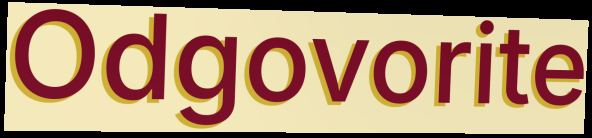
Odgovorite